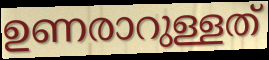
ഉണരാറുള്ളത്